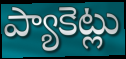
ప్యాకెట్లు